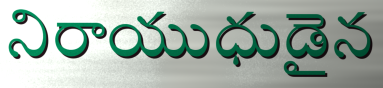
నిరాయుధుడైన